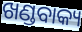
ଖଣ୍ଡବାକ୍ୟ